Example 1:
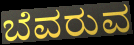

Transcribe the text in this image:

ಬೆವರುವ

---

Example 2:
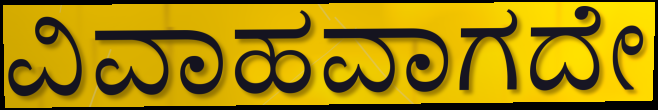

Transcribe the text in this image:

ವಿವಾಹವಾಗದೇ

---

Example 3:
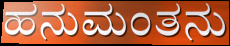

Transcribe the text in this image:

ಹನುಮಂತನು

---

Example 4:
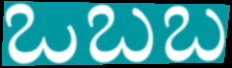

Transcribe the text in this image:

ಒಬಬ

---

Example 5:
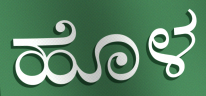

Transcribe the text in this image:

ಹೊಳ